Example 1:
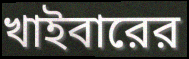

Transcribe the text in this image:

খাইবারের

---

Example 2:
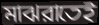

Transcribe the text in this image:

মাঝরাতেই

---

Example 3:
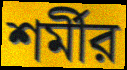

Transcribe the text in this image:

শর্মীর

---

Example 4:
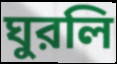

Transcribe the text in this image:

ঘুরলি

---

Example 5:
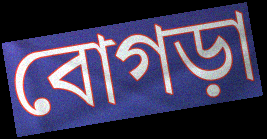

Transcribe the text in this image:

বোগড়া